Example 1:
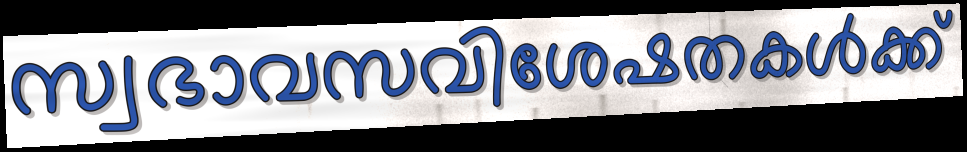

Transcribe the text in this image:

സ്വഭാവസവിശേഷതകൾക്ക്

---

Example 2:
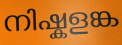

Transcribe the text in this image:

നിഷ്കളങ്ക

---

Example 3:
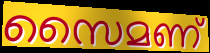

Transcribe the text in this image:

സൈമണ്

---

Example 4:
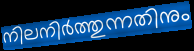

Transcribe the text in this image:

നിലനിർത്തുന്നതിനും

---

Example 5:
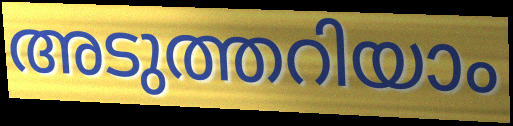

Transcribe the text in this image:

അടുത്തറിയാം